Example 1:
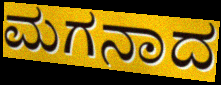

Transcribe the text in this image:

ಮಗನಾದ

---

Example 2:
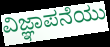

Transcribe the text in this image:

ವಿಜ್ಞಾಪನೆಯು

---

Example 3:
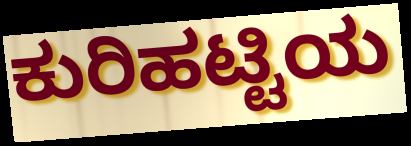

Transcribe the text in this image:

ಕುರಿಹಟ್ಟಿಯ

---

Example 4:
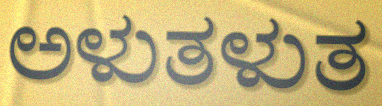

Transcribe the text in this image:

ಅಳುತಳುತ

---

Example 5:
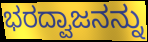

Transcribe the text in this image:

ಭರದ್ವಾಜನನ್ನು